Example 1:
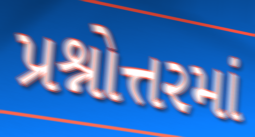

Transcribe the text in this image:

પ્રશ્નોત્તરમાં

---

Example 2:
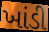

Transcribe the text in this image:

ખાંડી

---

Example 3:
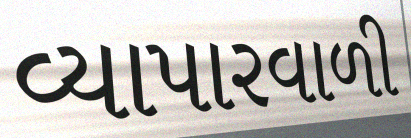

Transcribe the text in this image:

વ્યાપારવાળી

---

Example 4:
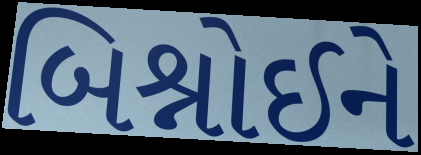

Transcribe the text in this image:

બિશ્નોઈને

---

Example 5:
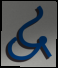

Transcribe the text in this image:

દ્વ